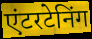
एंटरटेनिंग